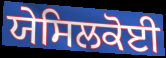
ਯੇਸਿਲਕੋਈ